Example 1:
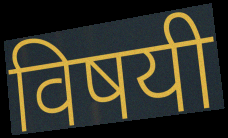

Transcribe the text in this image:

विषयी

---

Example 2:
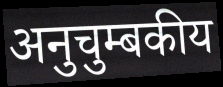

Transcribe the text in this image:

अनुचुम्बकीय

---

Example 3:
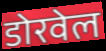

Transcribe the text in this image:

डोरवेल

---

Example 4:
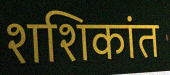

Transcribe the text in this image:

शशिकांत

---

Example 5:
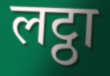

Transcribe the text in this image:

लट्ठा